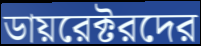
ডায়রেক্টরদের